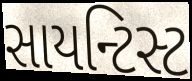
સાયન્ટિસ્ટ